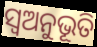
ସ୍ୱଅନୁଭୂତି